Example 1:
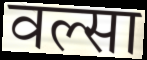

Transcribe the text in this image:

वल्सा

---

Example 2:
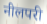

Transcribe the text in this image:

नीलपरी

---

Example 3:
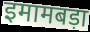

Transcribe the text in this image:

इमामबड़ा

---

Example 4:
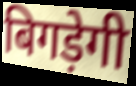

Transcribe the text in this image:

बिगड़ेगी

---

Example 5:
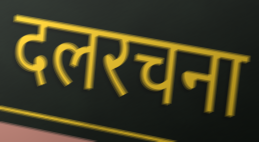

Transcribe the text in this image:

दलरचना